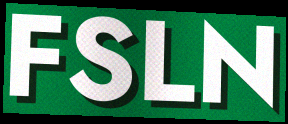
FSLN